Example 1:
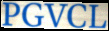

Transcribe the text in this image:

PGVCL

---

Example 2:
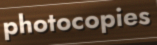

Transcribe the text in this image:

photocopies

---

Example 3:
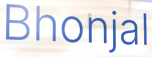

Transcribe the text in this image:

Bhonjal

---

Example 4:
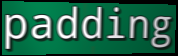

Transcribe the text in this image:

padding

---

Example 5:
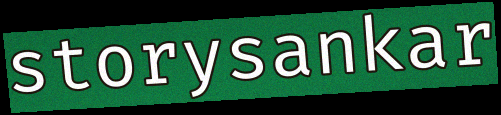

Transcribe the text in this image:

storysankar